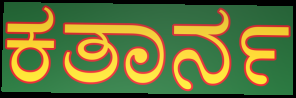
ಕತಾರ್ನ